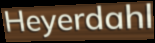
Heyerdahl